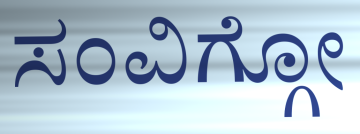
ಸಂವಿಗ್ಗೋ